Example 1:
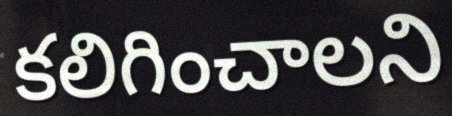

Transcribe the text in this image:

కలిగించాలని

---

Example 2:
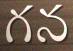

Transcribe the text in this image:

గన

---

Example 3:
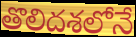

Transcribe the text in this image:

తొలిదశలోనే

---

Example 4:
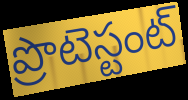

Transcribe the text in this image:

ప్రొటెస్టంట్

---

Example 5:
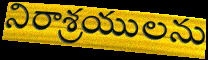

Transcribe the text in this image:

నిరాశ్రయులను